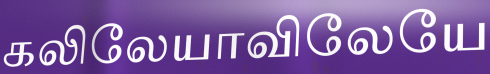
கலிலேயாவிலேயே